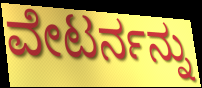
ವೇಟರ್ನನ್ನು